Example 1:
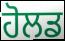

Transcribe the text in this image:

ਹੋਲਡ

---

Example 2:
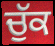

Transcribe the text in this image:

ਚੁੱਕ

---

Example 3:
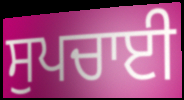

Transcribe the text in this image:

ਸੁਪਚਾਈ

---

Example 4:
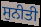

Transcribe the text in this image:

ਸੁਨੀਤੀ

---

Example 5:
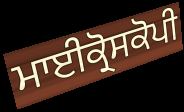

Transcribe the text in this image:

ਮਾਈਕ੍ਰੋਸਕੋਪੀ